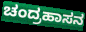
ಚಂದ್ರಹಾಸನ